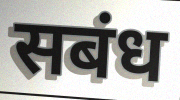
सबंध